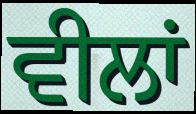
ਵੀਲਾਂ